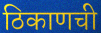
ठिकाणची